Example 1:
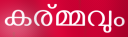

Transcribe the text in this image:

കര്മ്മവും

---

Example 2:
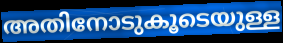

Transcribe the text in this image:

അതിനോടുകൂടെയുള്ള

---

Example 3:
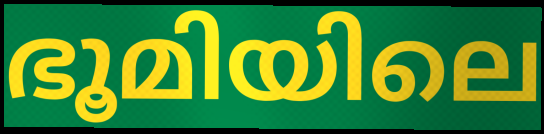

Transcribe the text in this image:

ഭൂമിയിലെ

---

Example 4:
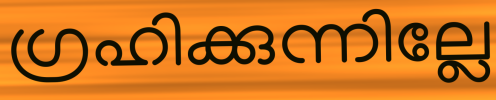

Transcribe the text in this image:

ഗ്രഹിക്കുന്നില്ലേ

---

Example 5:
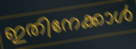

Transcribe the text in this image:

ഇതിനേക്കാൾ